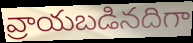
వ్రాయబడినదిగా